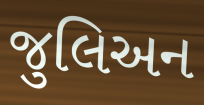
જુલિઅન